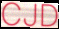
CJD